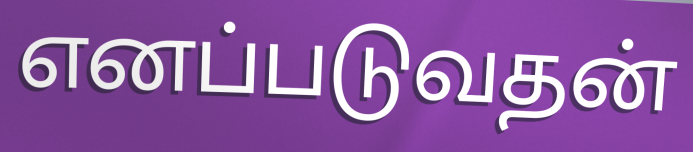
எனப்படுவதன்